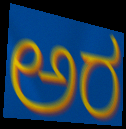
ಅರ